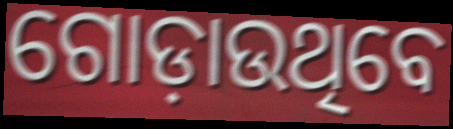
ଗୋଡ଼ାଉଥିବେ